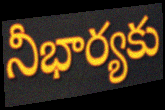
నీభార్యకు